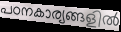
പഠനകാര്യങ്ങളിൽ